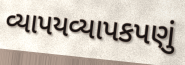
વ્યાપયવ્યાપકપણું